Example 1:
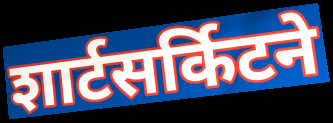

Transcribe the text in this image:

शार्टसर्किटने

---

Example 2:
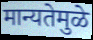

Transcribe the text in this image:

मान्यतेमुळे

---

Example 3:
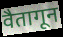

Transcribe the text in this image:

वैतागून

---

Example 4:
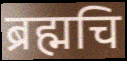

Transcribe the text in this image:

ब्रह्मचि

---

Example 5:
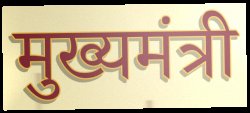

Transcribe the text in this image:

मुख्यमंत्री